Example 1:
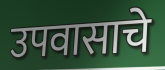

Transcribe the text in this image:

उपवासाचे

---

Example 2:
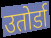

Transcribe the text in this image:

उतोर्डा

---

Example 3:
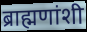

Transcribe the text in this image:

ब्राह्मणांशी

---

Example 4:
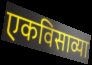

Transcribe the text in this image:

एकविसाव्या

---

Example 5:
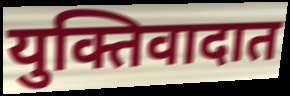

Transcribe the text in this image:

युक्तिवादात